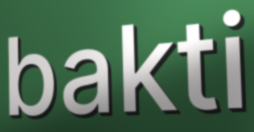
bakti